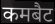
कमबैट